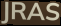
JRAS